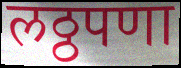
लठ्ठपणा